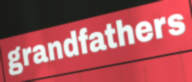
grandfathers